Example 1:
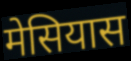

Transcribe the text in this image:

मेसियास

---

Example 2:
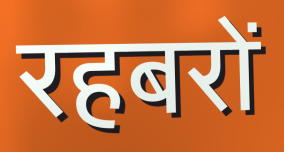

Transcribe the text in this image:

रहबरों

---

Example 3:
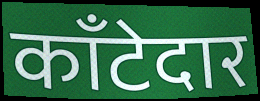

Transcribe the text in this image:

काँटेदार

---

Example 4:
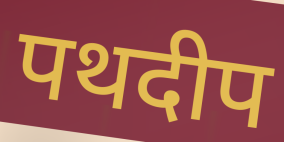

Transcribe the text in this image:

पथदीप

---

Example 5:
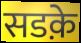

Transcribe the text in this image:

सडक़े